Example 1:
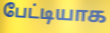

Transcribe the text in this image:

பேட்டியாக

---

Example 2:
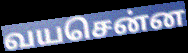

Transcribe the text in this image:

வயசென்ன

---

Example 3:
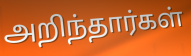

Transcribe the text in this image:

அறிந்தார்கள்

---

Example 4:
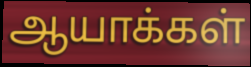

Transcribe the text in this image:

ஆயாக்கள்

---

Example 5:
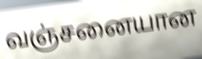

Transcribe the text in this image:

வஞ்சனையான